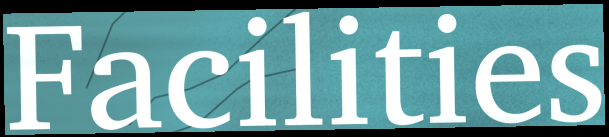
Facilities